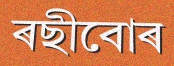
ৰছীবোৰ